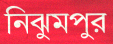
নিঝুমপুর